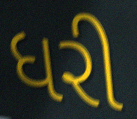
ધરી